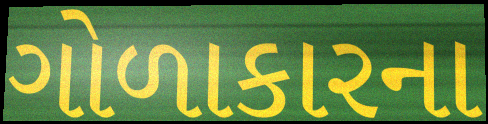
ગોળાકારના